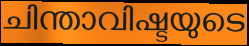
ചിന്താവിഷ്ടയുടെ